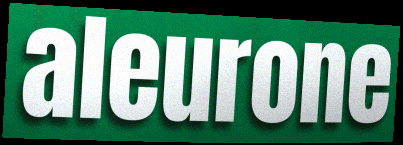
aleurone